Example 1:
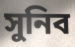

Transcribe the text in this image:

সুনিব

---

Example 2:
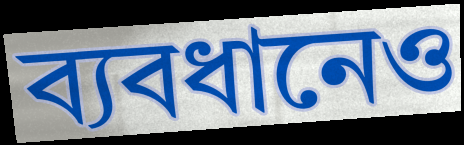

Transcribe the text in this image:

ব্যবধানেও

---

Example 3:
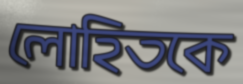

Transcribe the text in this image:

লোহিতকে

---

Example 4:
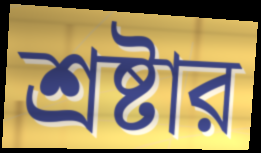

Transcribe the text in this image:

শ্রষ্টার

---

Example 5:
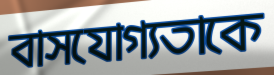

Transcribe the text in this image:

বাসযোগ্যতাকে